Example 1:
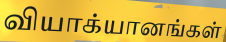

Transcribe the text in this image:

வியாக்யானங்கள்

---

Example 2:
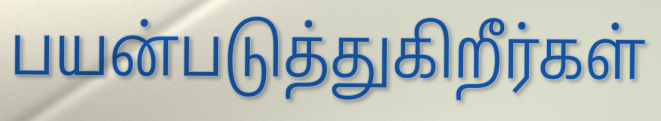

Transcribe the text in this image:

பயன்படுத்துகிறீர்கள்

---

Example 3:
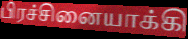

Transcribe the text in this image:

பிரச்சினையாக்கி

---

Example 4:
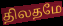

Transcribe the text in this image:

திலதமே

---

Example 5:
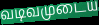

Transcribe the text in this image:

வடிவமுடைய